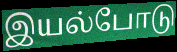
இயல்போடு